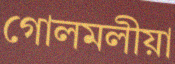
গোলমলীয়া